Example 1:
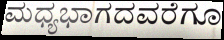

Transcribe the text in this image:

ಮಧ್ಯಭಾಗದವರೆಗೂ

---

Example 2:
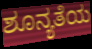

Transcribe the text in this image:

ಶೂನ್ಯತೆಯ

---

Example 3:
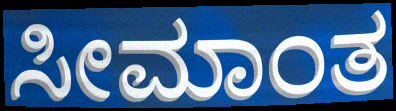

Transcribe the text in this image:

ಸೀಮಾಂತ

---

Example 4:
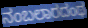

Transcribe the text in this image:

ನಂಬಲಾರದಂಥ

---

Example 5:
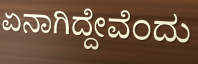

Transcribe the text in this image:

ಏನಾಗಿದ್ದೇವೆಂದು